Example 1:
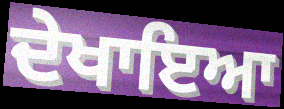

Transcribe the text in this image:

ਦੇਖਾਇਆ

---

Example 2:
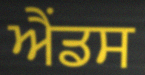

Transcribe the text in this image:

ਐਂਡਸ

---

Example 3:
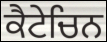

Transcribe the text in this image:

ਕੈਟੇਚਿਨ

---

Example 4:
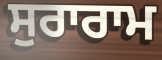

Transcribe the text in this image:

ਸੁਰਾਰਾਮ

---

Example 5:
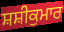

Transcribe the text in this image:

ਸ਼ਸ਼ੀਕੁਮਾਰ